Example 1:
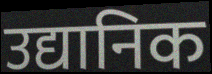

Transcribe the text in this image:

उद्यानिक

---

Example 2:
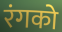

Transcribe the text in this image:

रंगको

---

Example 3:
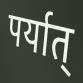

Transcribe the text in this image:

पर्यात्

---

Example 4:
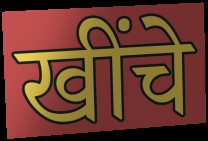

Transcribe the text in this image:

खींचे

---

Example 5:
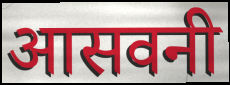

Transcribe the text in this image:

आसवनी